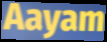
Aayam